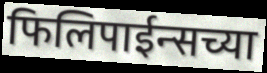
फिलिपाईन्सच्या